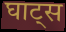
घाट्स